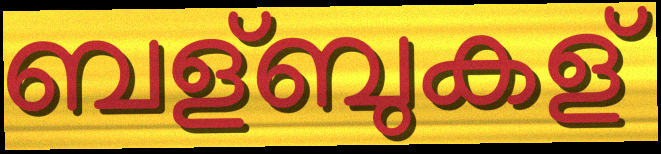
ബള്ബുകള്